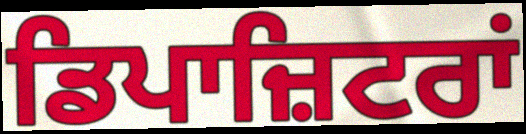
ਡਿਪਾਜ਼ਿਟਰਾਂ